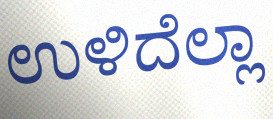
ಉಳಿದೆಲ್ಲಾ